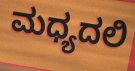
ಮಧ್ಯದಲಿ